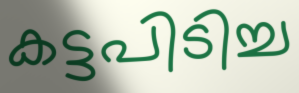
കട്ടപിടിച്ച